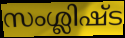
സംശ്ലിഷ്ട